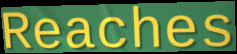
Reaches